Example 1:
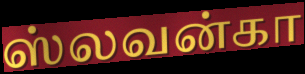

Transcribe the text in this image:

ஸ்லவன்கா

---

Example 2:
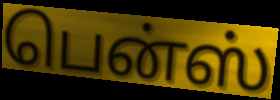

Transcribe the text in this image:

பென்ஸ்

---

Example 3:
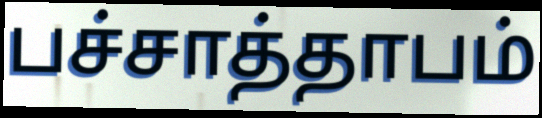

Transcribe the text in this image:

பச்சாத்தாபம்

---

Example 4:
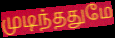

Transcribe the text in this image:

முடிந்ததுமே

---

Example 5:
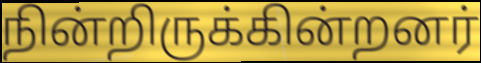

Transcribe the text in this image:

நின்றிருக்கின்றனர்